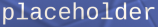
placeholder